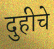
दुहीचे